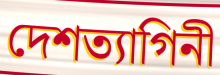
দেশত্যাগিনী